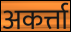
अकर्त्ता